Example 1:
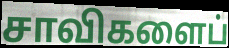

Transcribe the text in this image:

சாவிகளைப்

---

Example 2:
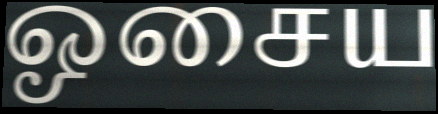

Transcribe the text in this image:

ஓசைய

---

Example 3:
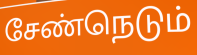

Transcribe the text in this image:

சேண்நெடும்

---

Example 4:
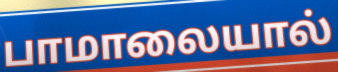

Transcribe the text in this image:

பாமாலையால்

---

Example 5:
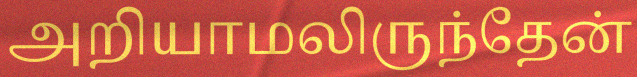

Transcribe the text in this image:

அறியாமலிருந்தேன்